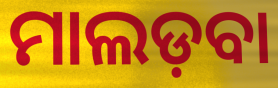
ମାଲଡ଼ବା